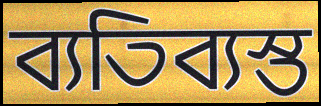
ব্যতিব্যস্ত